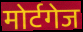
मोर्टगेज